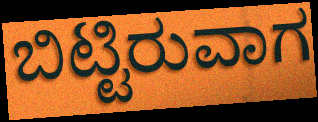
ಬಿಟ್ಟಿರುವಾಗ